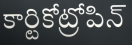
కార్టికోట్రోపిన్